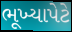
ભૂખ્યાપેટે